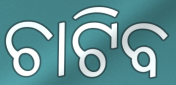
ଚାଟିବ